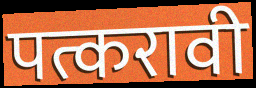
पत्करावी